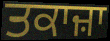
ਤਕਾਜ਼ਾ